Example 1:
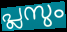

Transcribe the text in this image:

പ്ലസും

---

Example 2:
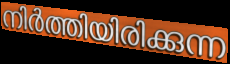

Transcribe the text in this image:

നിർത്തിയിരിക്കുന്ന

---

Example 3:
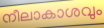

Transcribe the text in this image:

നീലാകാശവും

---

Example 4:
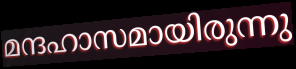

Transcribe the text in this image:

മന്ദഹാസമായിരുന്നു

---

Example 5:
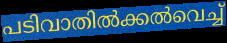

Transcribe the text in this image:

പടിവാതിൽക്കൽവെച്ച്